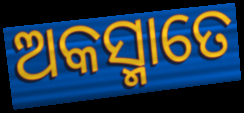
ଅକସ୍ମାତେ